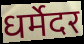
धर्मेदर